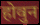
होवुन